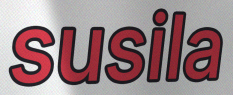
susila